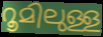
റൂമിലുള്ള